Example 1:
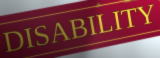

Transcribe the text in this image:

DISABILITY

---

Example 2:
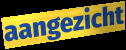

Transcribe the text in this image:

aangezicht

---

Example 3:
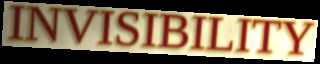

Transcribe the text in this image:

INVISIBILITY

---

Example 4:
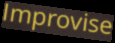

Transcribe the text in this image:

Improvise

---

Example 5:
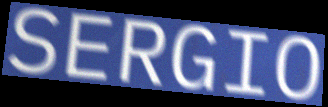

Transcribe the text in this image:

SERGIO